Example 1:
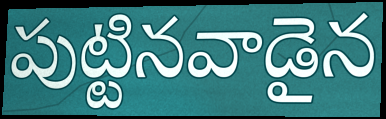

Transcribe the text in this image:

పుట్టినవాడైన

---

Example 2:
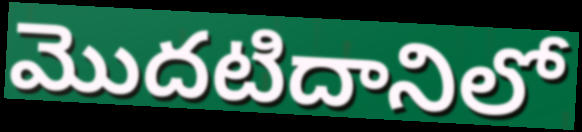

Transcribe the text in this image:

మొదటిదానిలో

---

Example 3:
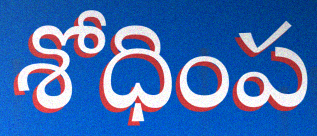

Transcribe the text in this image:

శోధింప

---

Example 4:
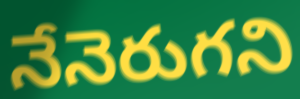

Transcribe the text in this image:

నేనెరుగని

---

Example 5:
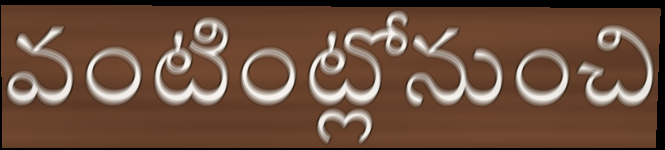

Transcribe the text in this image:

వంటింట్లోనుంచి